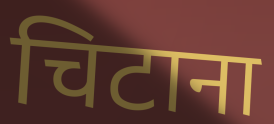
चिटाना